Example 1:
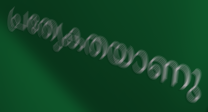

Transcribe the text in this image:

പ്രത്യേകതയാണു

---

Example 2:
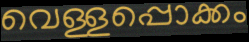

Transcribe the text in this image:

വെള്ളപ്പൊക്കം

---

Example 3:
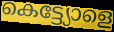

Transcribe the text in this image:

കെട്ട്യോളെ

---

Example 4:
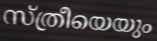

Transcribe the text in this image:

സ്ത്രീയെയും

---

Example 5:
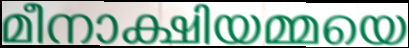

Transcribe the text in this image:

മീനാക്ഷിയമ്മയെ